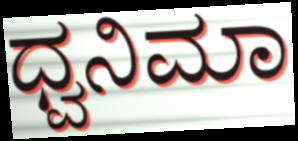
ಧ್ವನಿಮಾ